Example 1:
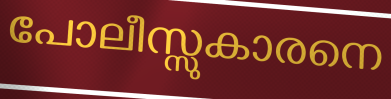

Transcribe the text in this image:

പോലീസ്സുകാരനെ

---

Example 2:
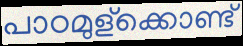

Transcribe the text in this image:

പാഠമുള്ക്കൊണ്ട്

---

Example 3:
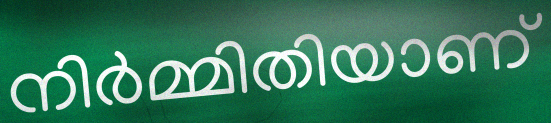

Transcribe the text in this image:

നിർമ്മിതിയാണ്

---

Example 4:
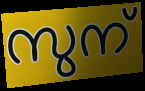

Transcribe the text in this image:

സുന്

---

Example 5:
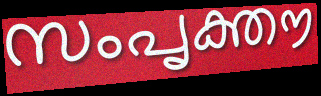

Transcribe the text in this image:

സംപൃക്തൗ